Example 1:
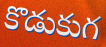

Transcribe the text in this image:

కొడుకుగ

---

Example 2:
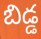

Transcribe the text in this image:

బిడ్డ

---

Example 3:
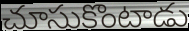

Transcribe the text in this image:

చూసుకొంటాడు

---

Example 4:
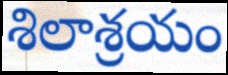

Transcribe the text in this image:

శిలాశ్రయం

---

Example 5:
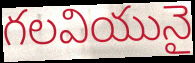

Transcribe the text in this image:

గలవియునై